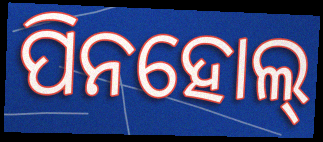
ପିନହୋଲ୍